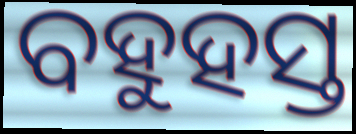
ବହୁହସ୍ତ